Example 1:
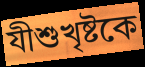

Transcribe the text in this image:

যীশুখৃষ্টকে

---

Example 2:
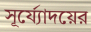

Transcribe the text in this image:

সূর্য্যোদয়ের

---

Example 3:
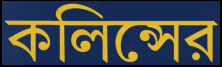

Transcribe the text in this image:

কলিন্সের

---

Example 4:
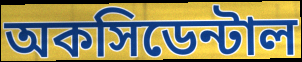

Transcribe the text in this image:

অকসিডেন্টাল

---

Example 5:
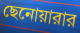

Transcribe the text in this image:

ছেনোয়ারার